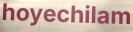
hoyechilam